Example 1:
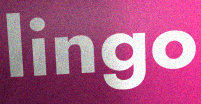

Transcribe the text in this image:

lingo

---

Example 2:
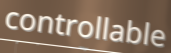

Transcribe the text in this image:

controllable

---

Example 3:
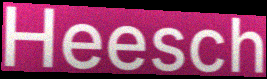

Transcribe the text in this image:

Heesch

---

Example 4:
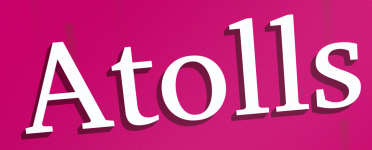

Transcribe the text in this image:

Atolls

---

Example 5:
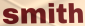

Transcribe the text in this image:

smith